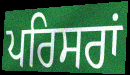
ਪਰਿਸਰਾਂ